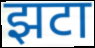
झटा